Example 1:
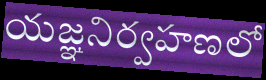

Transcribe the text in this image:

యజ్ఞనిర్వహణలో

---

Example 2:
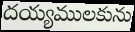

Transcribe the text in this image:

దయ్యములకును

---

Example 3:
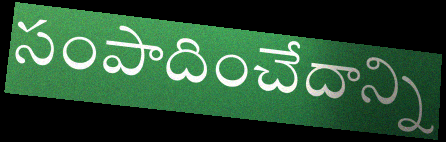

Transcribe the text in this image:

సంపాదించేదాన్ని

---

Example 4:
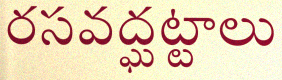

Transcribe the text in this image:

రసవద్ఘట్టాలు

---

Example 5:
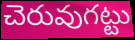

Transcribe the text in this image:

చెరువుగట్టు